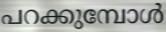
പറക്കുമ്പോൾ